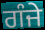
ਗੰਜੇ